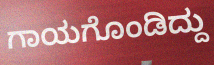
ಗಾಯಗೊಂಡಿದ್ದು